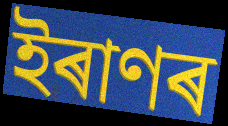
ইৰাণৰ